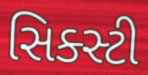
સિક્સ્ટી